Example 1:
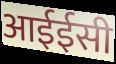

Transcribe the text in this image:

आईईसी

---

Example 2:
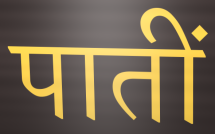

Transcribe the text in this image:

पातीं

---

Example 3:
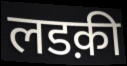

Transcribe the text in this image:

लडक़ी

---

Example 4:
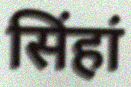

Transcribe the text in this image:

सिंहां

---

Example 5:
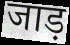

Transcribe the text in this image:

जाड़